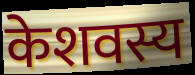
केशवस्य